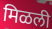
मिळली